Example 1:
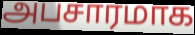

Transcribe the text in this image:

அபசாரமாக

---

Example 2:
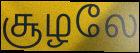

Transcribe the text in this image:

சூழலே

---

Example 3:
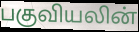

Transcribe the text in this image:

பகுவியலின்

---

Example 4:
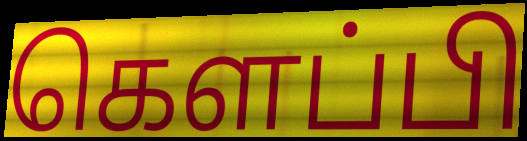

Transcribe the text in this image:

கெளப்பி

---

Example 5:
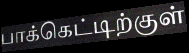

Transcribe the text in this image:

பாக்கெட்டிற்குள்